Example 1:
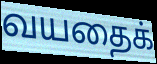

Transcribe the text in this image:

வயதைக்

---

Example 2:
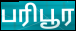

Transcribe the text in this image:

பரிபூர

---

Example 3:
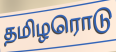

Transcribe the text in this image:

தமிழரொடு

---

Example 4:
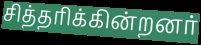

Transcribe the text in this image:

சித்தரிக்கின்றனர்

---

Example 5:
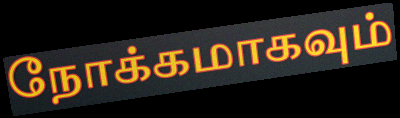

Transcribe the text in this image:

நோக்கமாகவும்